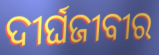
ଦୀର୍ଘଜୀବୀର